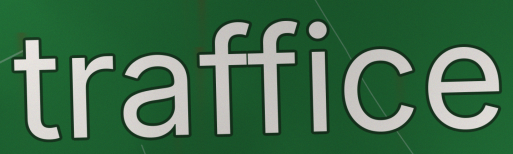
traffice